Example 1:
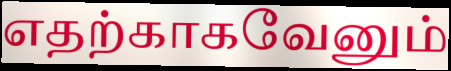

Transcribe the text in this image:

எதற்காகவேனும்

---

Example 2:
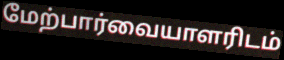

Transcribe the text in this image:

மேற்பார்வையாளரிடம்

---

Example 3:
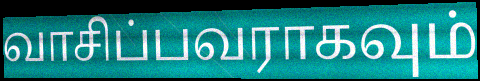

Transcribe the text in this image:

வாசிப்பவராகவும்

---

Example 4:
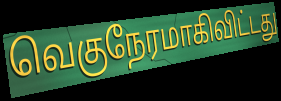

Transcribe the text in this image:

வெகுநேரமாகிவிட்டது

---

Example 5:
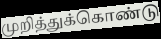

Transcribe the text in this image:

முறித்துக்கொண்டு